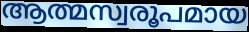
ആത്മസ്വരൂപമായ